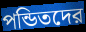
পন্ডিতদের